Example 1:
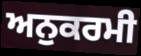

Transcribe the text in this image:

ਅਨੁਕਰਮੀ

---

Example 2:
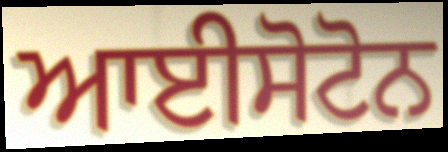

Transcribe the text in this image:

ਆਈਸੋਟੋਨ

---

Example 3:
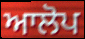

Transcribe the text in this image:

ਆਲੋਪ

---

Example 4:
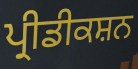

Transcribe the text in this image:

ਪ੍ਰੀਡੀਕਸ਼ਨ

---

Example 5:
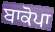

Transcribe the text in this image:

ਬਾਕੋਪਾ